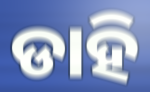
ଡାହି